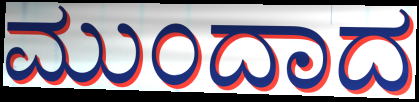
ಮುಂದಾದ